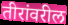
तीरांवरील